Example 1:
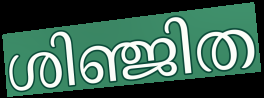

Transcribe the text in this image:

ശിഞ്ജിത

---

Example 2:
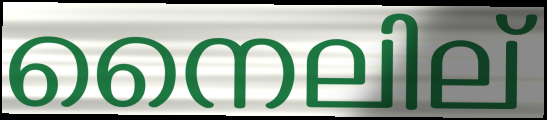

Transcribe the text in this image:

നൈലില്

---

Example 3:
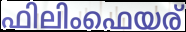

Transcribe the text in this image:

ഫിലിംഫെയര്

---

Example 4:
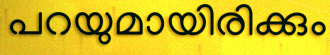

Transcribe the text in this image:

പറയുമായിരിക്കും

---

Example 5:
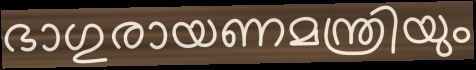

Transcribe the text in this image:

ഭാഗുരായണമന്ത്രിയും